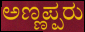
ಅಣ್ಣಪ್ಪರು